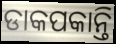
ଡାକପକାନ୍ତି